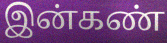
இன்கண்